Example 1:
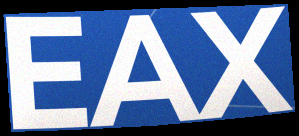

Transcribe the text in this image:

EAX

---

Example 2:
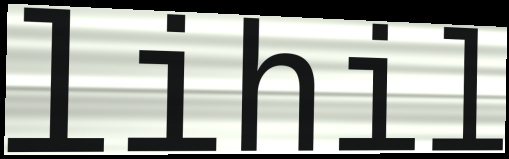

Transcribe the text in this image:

lihil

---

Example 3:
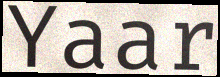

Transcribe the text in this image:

Yaar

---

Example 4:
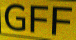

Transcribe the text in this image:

GFF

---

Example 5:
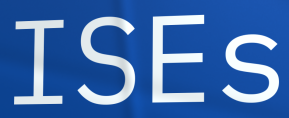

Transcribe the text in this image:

ISEs